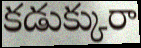
కడుక్కురా